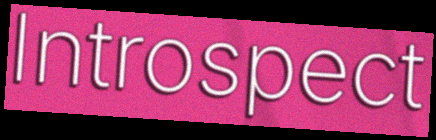
Introspect